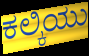
ಕಲ್ಕಿಯು